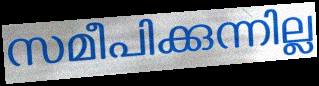
സമീപിക്കുന്നില്ല